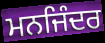
ਮਨਜਿੰਦਰ